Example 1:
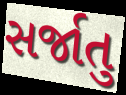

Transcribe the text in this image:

સર્જાતુ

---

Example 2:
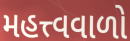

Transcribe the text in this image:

મહત્ત્વવાળો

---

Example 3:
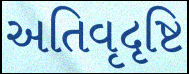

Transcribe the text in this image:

અતિવૃદૃષ્ટિ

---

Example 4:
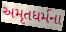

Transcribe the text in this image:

અમૃતધર્મના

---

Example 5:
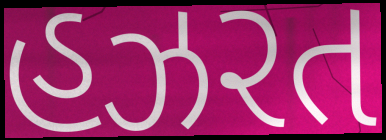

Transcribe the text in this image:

હઝરત